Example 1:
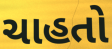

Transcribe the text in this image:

ચાહતો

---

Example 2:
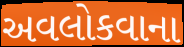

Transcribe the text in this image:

અવલોકવાના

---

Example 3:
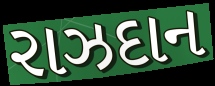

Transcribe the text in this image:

રાઝદાન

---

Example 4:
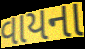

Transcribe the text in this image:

વાયના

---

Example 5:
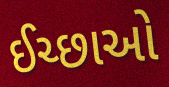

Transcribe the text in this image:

ઈચ્છાઓ